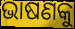
ଭାଷଣକୁ